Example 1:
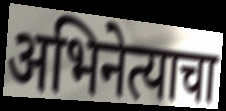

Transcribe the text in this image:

अभिनेत्याचा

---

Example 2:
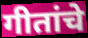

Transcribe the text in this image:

गीतांचे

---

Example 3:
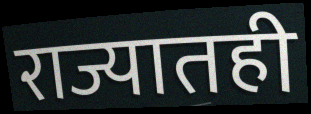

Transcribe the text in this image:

राज्यातही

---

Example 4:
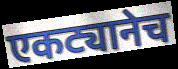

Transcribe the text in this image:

एकट्यानेच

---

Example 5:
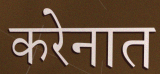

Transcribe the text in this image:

करेनात